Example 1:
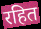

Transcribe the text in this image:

रहित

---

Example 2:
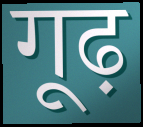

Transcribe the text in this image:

गूढ़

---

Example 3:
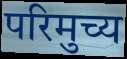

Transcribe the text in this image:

परिमुच्य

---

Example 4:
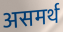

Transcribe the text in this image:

असमर्थ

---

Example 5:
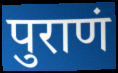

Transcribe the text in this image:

पुराणं